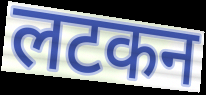
लटकन